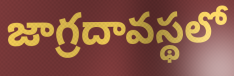
జాగ్రదావస్థలో